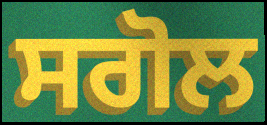
ਸਗੋਲ